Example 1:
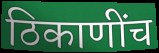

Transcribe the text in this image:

ठिकाणींच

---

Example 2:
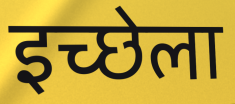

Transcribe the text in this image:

इच्छेला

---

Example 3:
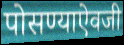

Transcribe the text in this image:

पोसण्याऐवजी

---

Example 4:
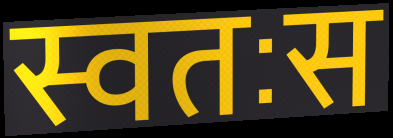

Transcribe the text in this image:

स्वतःस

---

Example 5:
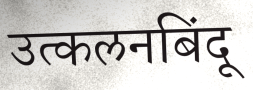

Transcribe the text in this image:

उत्कलनबिंदू